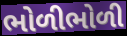
ભોળીભોળી